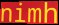
nimh